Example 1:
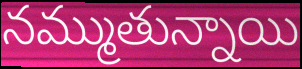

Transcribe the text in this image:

నమ్ముతున్నాయి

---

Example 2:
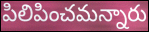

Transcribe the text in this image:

పిలిపించమన్నారు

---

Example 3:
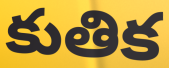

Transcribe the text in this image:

కుతిక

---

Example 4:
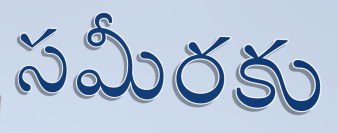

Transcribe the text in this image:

సమీరకు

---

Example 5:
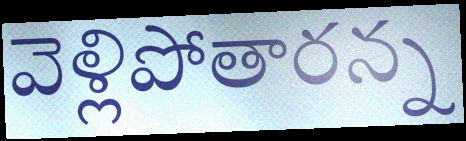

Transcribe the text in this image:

వెళ్లిపోతారన్న